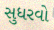
સુધરવો